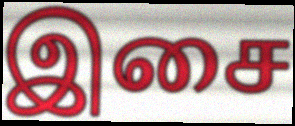
இசை